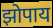
झोपाय